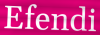
Efendi